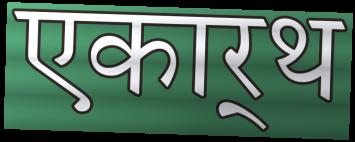
एकार्थ